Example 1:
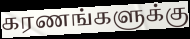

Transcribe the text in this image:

கரணங்களுக்கு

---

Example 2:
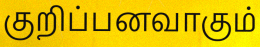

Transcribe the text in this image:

குறிப்பனவாகும்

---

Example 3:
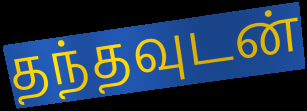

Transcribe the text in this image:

தந்தவுடன்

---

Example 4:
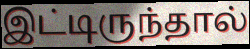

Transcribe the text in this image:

இட்டிருந்தால்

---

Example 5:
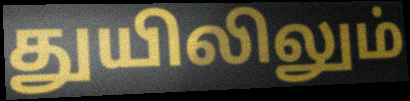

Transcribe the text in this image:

துயிலிலும்